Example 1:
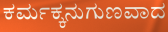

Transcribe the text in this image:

ಕರ್ಮಕ್ಕನುಗುಣವಾದ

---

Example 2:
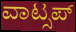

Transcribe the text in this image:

ವಾಟ್ಸಪ್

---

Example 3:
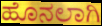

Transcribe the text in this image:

ಹೊನಲಾಗಿ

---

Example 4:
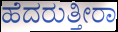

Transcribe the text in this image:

ಹೆದರುತ್ತೀರಾ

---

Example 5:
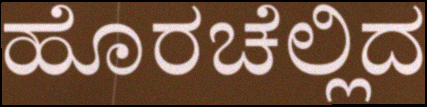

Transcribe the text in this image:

ಹೊರಚೆಲ್ಲಿದ